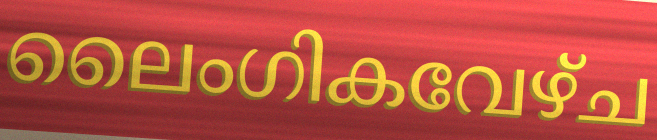
ലൈംഗികവേഴ്ച